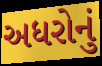
અધરોનું